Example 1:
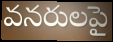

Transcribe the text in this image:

వనరులపై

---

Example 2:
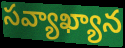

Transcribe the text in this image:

సవ్యాఖ్యాన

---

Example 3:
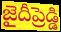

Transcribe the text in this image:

జైదీప్రెడ్డి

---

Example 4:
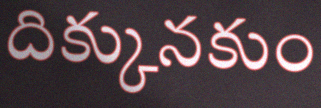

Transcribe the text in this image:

దిక్కునకుం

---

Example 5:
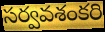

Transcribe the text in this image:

సర్వవశంకరి